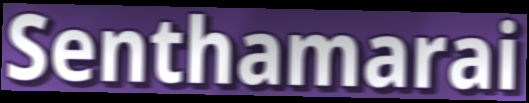
Senthamarai